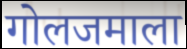
गोलजमाला